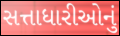
સત્તાધારીઓનું